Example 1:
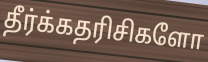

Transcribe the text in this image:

தீர்க்கதரிசிகளோ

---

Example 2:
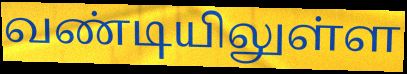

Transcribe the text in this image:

வண்டியிலுள்ள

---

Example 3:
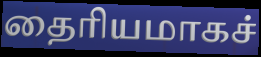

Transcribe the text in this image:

தைரியமாகச்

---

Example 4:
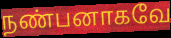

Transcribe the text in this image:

நண்பனாகவே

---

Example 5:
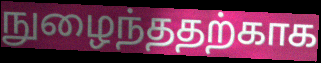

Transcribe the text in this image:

நுழைந்ததற்காக